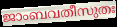
ജാംബവതീസുതഃ